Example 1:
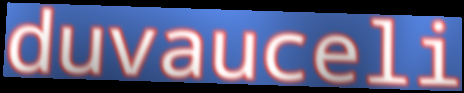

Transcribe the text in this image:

duvauceli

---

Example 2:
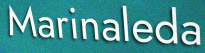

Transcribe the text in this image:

Marinaleda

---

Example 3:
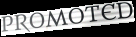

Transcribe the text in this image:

PROMOTED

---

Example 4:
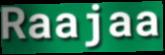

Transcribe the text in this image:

Raajaa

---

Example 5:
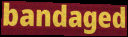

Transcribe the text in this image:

bandaged